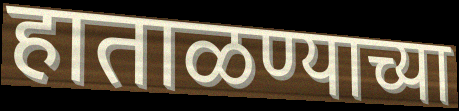
हाताळण्याच्या